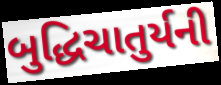
બુદ્ધિચાતુર્યની